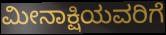
ಮೀನಾಕ್ಷಿಯವರಿಗೆ